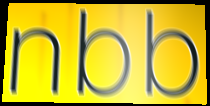
nbb